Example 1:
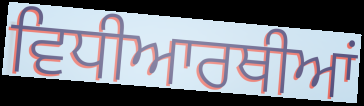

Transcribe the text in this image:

ਵਿਧੀਆਰਥੀਆਂ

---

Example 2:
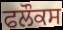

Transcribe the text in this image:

ਫਲੌਕਸ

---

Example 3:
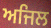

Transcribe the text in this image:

ਅਜਿਲ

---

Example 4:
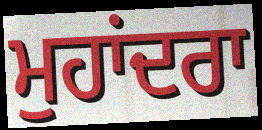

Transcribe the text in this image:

ਮੁਹਾਂਦਰਾ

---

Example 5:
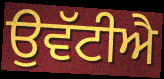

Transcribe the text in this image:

ਉਵੱਟੀਐ